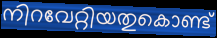
നിറവേറ്റിയതുകൊണ്ട്